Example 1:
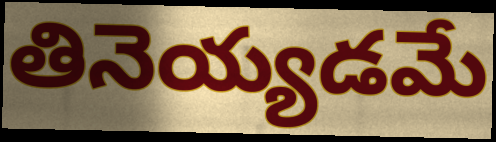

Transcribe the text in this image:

తినెయ్యడమే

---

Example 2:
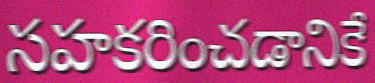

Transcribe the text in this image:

సహకరించడానికే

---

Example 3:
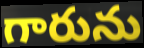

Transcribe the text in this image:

గారును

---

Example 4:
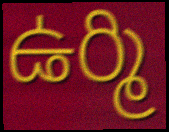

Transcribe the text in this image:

ఉర్మి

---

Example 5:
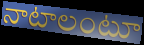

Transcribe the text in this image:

నాటాలంటూ